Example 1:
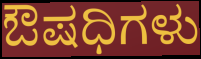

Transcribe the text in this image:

ಔಷಧಿಗಳು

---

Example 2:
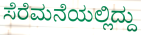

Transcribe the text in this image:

ಸೆರೆಮನೆಯಲ್ಲಿದ್ದು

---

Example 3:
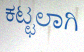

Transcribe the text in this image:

ಕಟ್ಟಲಾಗಿ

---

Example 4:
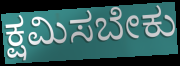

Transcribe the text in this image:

ಕ್ಷಮಿಸಬೇಕು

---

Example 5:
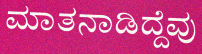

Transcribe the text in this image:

ಮಾತನಾಡಿದ್ದೆವು